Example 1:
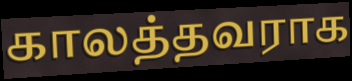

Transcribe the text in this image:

காலத்தவராக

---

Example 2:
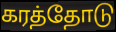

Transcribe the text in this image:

கரத்தோடு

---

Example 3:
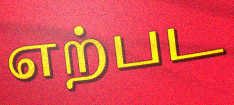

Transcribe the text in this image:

எற்பட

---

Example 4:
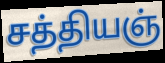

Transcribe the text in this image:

சத்தியஞ்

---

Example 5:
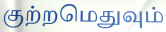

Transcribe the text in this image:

குற்றமெதுவும்